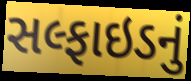
સલ્ફાઇડનું